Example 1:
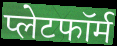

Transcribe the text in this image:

प्‍लेटफॉर्म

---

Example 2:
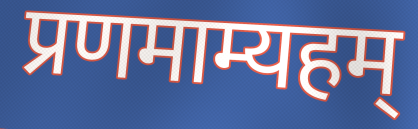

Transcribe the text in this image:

प्रणमाम्यहम्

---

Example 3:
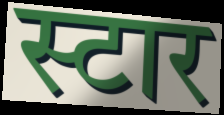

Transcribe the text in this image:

स्‍टार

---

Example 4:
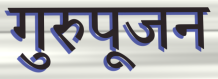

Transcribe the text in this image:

गुरुपूजन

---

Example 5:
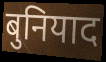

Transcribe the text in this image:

बुनियाद